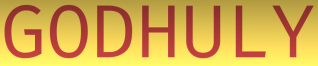
GODHULY